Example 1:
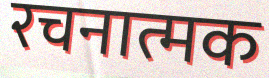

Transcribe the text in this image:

रचनात्मक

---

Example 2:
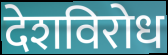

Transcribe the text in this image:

देशविरोध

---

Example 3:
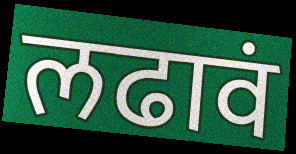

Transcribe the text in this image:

लढावं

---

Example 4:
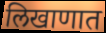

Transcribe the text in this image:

लिखाणात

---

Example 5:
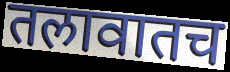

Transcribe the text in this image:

तलावातच